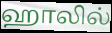
ஹாலில்